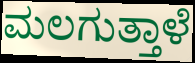
ಮಲಗುತ್ತಾಳೆ